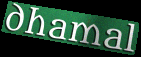
dhamal